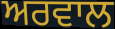
ਅਰਵਾਲ